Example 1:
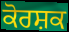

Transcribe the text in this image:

ਕੋਰਸ਼ਕ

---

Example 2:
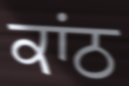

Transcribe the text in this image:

ਕਾਂਠ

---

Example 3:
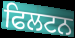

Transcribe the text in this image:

ਫਿਲਟਨ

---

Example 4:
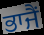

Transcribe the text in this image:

ਭਾਜੈਂ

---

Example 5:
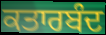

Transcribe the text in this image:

ਕਤਾਰਬੰਦ